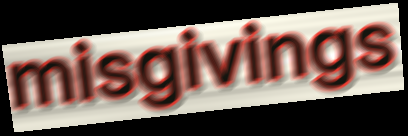
misgivings